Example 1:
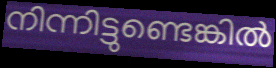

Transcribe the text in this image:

നിന്നിട്ടുണ്ടെങ്കിൽ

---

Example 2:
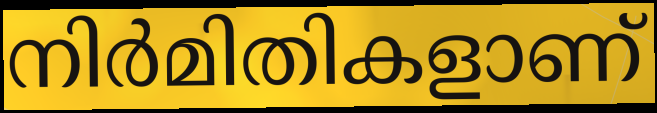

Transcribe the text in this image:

നിർമിതികളാണ്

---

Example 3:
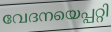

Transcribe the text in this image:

വേദനയെപ്പറ്റി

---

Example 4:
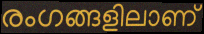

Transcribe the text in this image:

രംഗങ്ങളിലാണ്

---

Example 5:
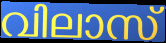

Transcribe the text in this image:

വിലാസ്